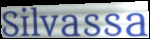
Silvassa